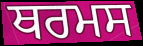
ਥਰਮਸ